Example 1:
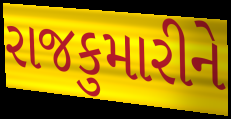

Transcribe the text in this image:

રાજકુમારીને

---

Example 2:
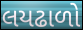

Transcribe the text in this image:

લયઢાળો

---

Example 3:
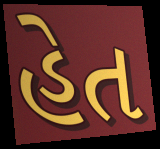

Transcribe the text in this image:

હેત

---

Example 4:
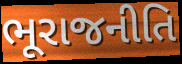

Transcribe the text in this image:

ભૂરાજનીતિ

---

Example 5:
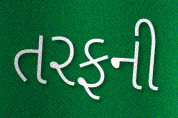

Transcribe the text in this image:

તરફની